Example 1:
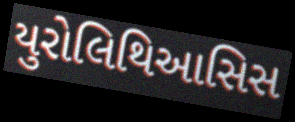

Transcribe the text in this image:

યુરોલિથિઆસિસ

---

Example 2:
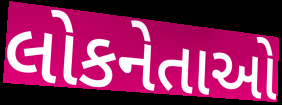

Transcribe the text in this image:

લોકનેતાઓ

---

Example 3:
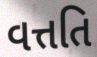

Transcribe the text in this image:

વત્તતિ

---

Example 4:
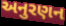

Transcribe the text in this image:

અનુરણન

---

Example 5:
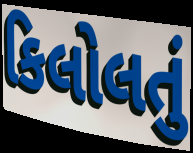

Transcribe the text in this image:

કિલોલતું